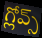
గ్లోవ్స్